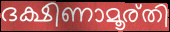
ദക്ഷിണാമൂര്തി